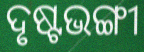
ଦୃଷ୍ଟଭଙ୍ଗୀ